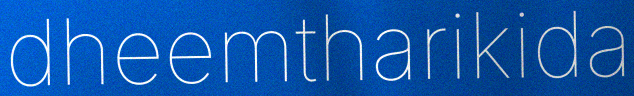
dheemtharikida